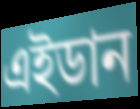
এইডান